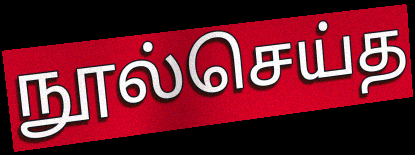
நூல்செய்த